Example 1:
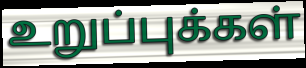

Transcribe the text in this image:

உறுப்புக்கள்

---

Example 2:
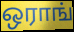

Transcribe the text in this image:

ஒராங்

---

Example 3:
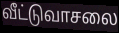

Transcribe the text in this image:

வீட்டுவாசலை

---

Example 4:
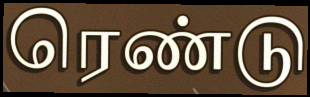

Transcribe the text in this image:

ரெண்டு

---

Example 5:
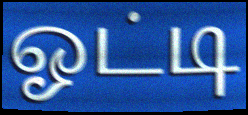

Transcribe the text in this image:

ஓட்டி